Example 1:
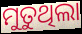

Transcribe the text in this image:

ମୁତୁଥିଲା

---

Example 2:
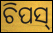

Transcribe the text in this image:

ଚିପସ୍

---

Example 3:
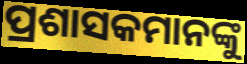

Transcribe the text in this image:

ପ୍ରଶାସକମାନଙ୍କୁ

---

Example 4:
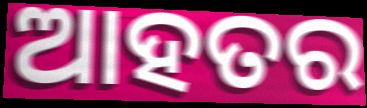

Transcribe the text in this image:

ଆହତର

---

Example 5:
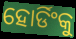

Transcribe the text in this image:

ହୋର୍ଡିଂକୁ